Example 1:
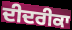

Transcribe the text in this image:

ਦੀਦਰੀਕਾ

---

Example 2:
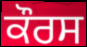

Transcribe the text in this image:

ਕੌਰਸ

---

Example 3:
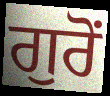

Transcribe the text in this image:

ਗੁਰੋਂ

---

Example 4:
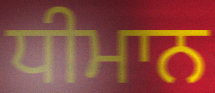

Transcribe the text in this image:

ਧੀਮਾਨ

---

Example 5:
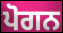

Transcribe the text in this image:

ਪੋਗਨ